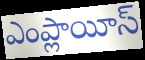
ఎంప్లాయీస్